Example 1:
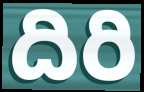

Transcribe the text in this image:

దిరి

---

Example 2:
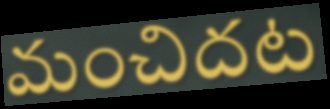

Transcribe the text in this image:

మంచిదట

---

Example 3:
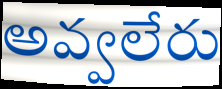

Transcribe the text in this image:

అవ్వలేరు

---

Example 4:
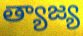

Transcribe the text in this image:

త్యాజ్య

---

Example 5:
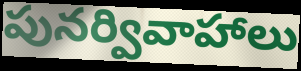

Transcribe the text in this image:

పునర్వివాహాలు